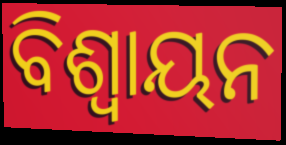
ବିଶ୍ୱାୟନ